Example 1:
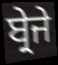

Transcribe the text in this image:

ਬ੍ਰੇਜੇ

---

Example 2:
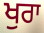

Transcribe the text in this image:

ਖੁਰਾ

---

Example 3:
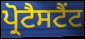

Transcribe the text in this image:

ਪ੍ਰੋਟੈਸਟੈਂਟ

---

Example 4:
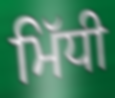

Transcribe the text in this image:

ਮਿੱਧੀ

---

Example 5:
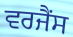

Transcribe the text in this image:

ਵਰਜੈਂਸ